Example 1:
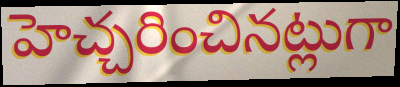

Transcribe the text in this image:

హెచ్చరించినట్లుగా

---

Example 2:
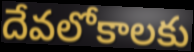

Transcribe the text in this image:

దేవలోకాలకు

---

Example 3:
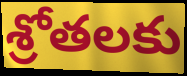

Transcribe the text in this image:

శ్రోతలకు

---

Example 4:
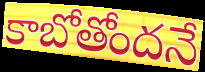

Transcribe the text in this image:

కాబోతోందనే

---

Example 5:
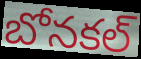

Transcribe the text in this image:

బోనకల్